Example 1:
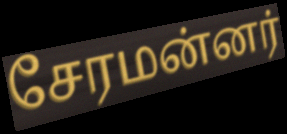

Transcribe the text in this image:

சேரமன்னர்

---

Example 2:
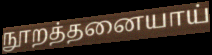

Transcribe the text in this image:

நூறத்தனையாய்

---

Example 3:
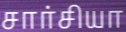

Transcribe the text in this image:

சார்சியா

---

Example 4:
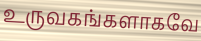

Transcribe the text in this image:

உருவகங்களாகவே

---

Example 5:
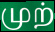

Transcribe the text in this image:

முற்